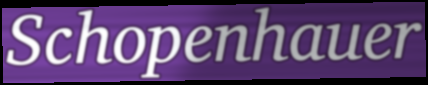
Schopenhauer